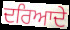
ਦਰਿਆਦੇ